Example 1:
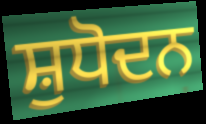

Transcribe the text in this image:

ਸ਼ੁਧੋਦਨ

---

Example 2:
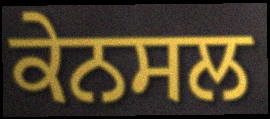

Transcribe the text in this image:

ਕੇਨਸਲ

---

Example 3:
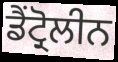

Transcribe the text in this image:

ਡੈਂਟ੍ਰੋਲੀਨ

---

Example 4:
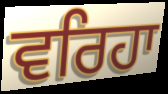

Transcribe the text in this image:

ਵਰਿਹਾ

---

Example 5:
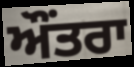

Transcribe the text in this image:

ਔਂਤਰਾ